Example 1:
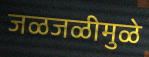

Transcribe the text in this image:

जळजळीमुळे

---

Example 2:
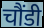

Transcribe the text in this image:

चौंडी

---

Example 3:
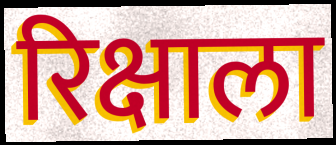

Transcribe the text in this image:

रिक्षाला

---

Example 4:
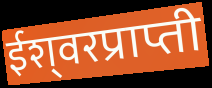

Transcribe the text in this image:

ईश्वरप्राप्ती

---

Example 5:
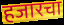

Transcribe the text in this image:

हजारचा